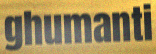
ghumanti